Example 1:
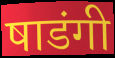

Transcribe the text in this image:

षाडंगी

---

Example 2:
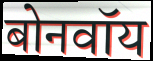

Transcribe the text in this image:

बोनवॉय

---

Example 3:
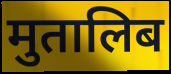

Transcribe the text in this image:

मुतालिब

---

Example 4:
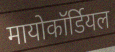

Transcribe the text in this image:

मायोकॉर्डियल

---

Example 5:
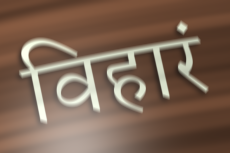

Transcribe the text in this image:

विहारं